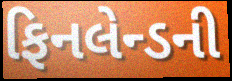
ફિનલેન્ડની